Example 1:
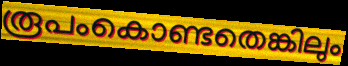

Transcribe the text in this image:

രൂപംകൊണ്ടതെങ്കിലും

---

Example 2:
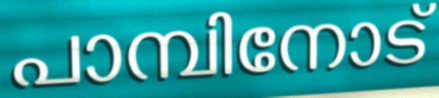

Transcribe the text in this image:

പാമ്പിനോട്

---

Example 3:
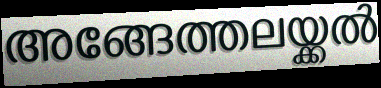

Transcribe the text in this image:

അങ്ങേത്തലയ്ക്കൽ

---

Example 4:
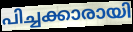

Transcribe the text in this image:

പിച്ചക്കാരായി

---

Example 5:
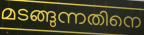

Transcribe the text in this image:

മടങ്ങുന്നതിനെ